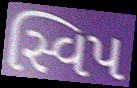
સ્વિપ